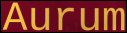
Aurum